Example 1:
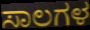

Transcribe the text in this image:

ಸಾಲಗಳ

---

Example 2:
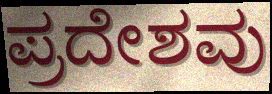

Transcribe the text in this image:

ಪ್ರದೇಶವು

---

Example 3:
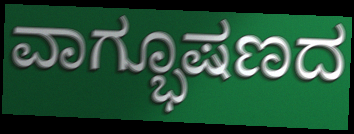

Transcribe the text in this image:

ವಾಗ್ಭೂಷಣದ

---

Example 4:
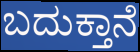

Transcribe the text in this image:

ಬದುಕ್ತಾನೆ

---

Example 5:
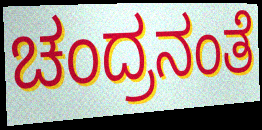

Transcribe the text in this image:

ಚಂದ್ರನಂತೆ